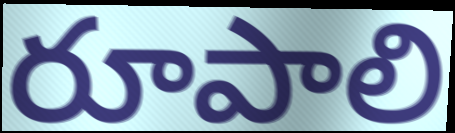
రూపాలి